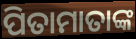
ପିତାମାତାଙ୍କ